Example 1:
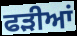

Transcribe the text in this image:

ਫੜੀਆਂ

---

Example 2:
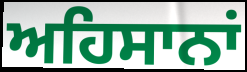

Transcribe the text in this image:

ਅਹਿਸਾਨਾਂ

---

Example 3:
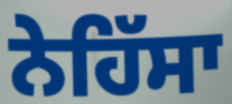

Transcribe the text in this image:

ਨੇਹਿੱਸਾ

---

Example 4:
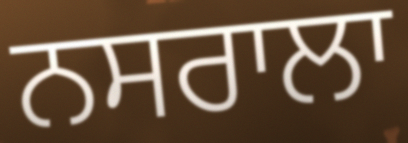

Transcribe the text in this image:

ਨਸਰਾਲਾ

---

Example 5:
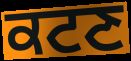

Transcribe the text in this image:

ਕਟਣ